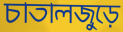
চাতালজুড়ে